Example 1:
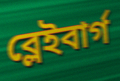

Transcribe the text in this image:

ব্লেইবার্গ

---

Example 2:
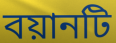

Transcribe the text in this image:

বয়ানটি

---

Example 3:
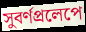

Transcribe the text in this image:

সুবর্ণপ্রলেপে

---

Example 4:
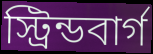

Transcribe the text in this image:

স্ট্রিন্ডবার্গ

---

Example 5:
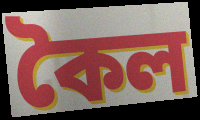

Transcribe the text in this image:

কৈল